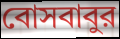
বোসবাবুর